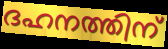
ദഹനത്തിന്